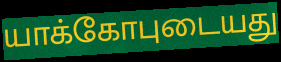
யாக்கோபுடையது